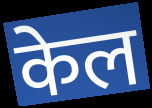
केल